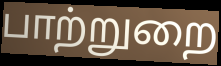
பாற்றுறை